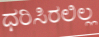
ಧರಿಸಿರಲಿಲ್ಲ